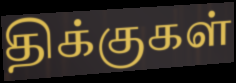
திக்குகள்